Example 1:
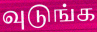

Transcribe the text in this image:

வுடுங்க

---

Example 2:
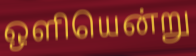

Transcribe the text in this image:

ஒளியென்று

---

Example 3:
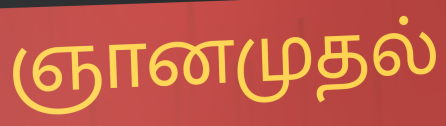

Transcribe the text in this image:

ஞானமுதல்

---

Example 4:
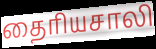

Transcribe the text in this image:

தைரியசாலி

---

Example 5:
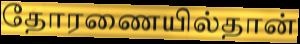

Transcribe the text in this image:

தோரணையில்தான்